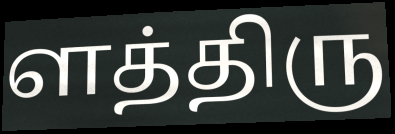
ளத்திரு